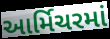
આર્મિચરમાં